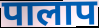
पालाप